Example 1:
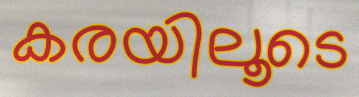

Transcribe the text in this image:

കരയിലൂടെ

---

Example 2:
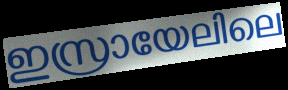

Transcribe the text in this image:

ഇസ്രായേലിലെ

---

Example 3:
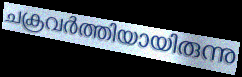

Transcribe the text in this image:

ചക്രവർത്തിയായിരുന്നു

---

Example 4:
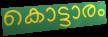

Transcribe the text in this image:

കൊട്ടാരം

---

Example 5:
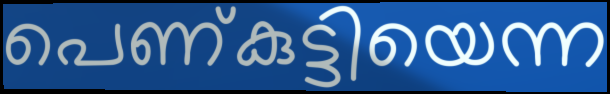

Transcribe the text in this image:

പെണ്കുട്ടിയെന്ന